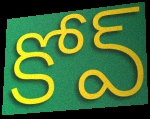
కోవ్